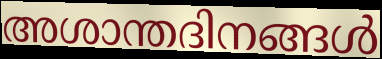
അശാന്തദിനങ്ങൾ